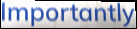
Importantly